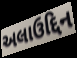
અલાઉદ્દિન